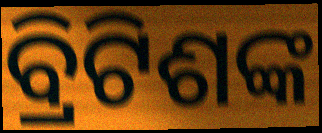
ବ୍ରିଟିଶଙ୍କ